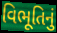
વિભૂતિનું